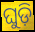
ଘୁଡ଼ି